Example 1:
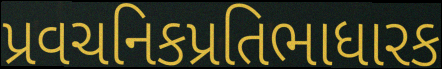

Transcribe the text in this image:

પ્રવચનિકપ્રતિભાધારક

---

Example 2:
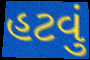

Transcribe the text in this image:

હટવું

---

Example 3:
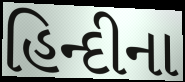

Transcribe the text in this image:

હિન્દીના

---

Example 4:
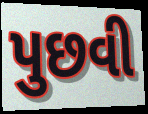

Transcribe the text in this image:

પુછવી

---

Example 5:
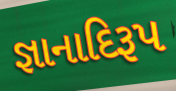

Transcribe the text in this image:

જ્ઞાનાદિરૂપ